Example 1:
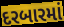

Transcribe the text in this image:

દરબારમાં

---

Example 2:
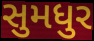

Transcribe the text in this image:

સુમધુર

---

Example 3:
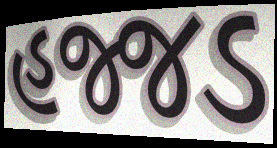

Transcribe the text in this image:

હજ્જડ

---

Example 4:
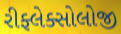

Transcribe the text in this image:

રીફ્લેક્સોલોજી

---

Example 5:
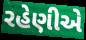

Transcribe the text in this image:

રહેણીએ